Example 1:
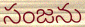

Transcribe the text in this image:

సంజను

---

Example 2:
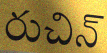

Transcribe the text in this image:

రుచిన్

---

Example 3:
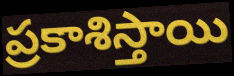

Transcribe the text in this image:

ప్రకాశిస్తాయి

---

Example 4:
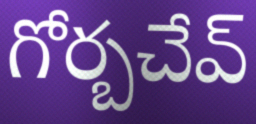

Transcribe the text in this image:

గోర్బచేవ్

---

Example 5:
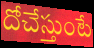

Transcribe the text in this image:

దోచేస్తుంటే